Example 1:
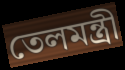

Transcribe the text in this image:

তেলমন্ত্রী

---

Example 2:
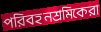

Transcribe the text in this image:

পরিবহনশ্রমিকেরা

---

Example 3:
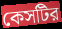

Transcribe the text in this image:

কেসটির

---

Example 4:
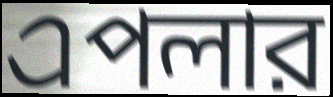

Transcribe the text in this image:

এপলার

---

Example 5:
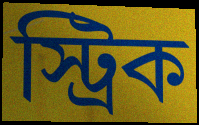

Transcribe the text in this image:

স্ট্রিক